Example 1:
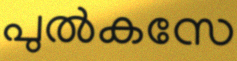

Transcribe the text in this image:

പുൽകസേ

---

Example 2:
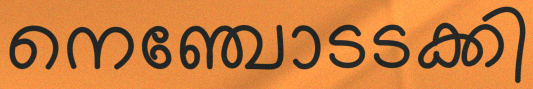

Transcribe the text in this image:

നെഞ്ചോടടക്കി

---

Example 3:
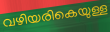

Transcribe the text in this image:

വഴിയരികെയുള്ള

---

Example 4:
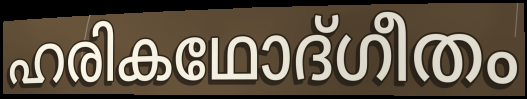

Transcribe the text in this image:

ഹരികഥോദ്ഗീതം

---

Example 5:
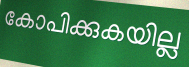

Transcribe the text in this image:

കോപിക്കുകയില്ല